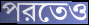
পরতেও